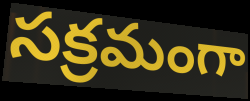
సక్రమంగా